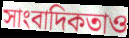
সাংবাদিকতাও